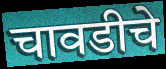
चावडीचे